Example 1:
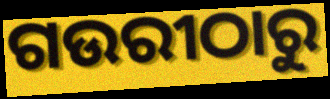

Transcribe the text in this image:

ଗଉରୀଠାରୁ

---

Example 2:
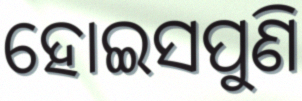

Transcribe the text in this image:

ହୋଇସପୁଣି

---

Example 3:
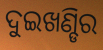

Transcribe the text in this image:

ଦୁଇଖଣ୍ଡିର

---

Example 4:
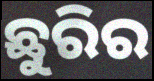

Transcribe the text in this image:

ଛୁରିର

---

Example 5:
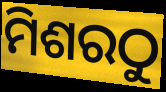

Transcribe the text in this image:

ମିଶରଠୁ